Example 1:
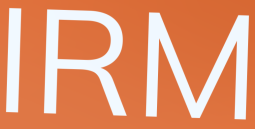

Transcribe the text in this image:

IRM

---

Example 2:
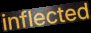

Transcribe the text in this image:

inflected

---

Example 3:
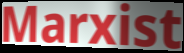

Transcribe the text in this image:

Marxist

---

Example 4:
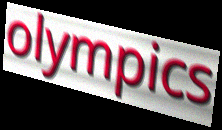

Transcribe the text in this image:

olympics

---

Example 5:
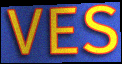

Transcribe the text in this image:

VES